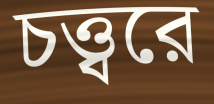
চত্ত্বরে